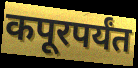
कपूरपर्यंत